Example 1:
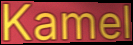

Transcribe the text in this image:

Kamel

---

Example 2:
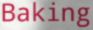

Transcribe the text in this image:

Baking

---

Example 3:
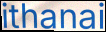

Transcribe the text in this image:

ithanai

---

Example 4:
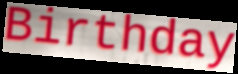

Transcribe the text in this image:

Birthday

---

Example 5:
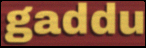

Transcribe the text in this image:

gaddu